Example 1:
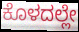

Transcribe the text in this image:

ಕೊಳದಲ್ಲೇ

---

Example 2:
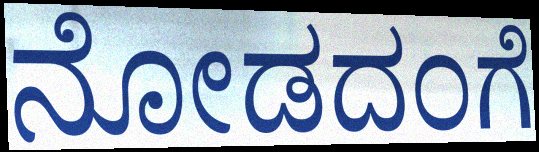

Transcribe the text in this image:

ನೋಡದಂಗೆ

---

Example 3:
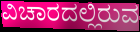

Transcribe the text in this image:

ವಿಚಾರದಲ್ಲಿರುವ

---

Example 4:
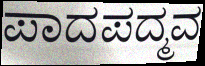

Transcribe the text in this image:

ಪಾದಪದ್ಮವ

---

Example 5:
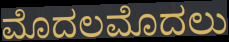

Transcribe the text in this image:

ಮೊದಲಮೊದಲು